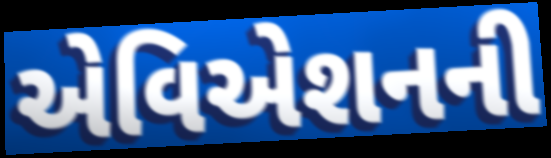
એવિએશનની